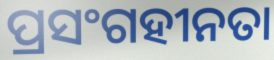
ପ୍ରସଂଗହୀନତା